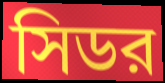
সিডর